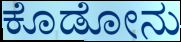
ಕೊಡೋನು